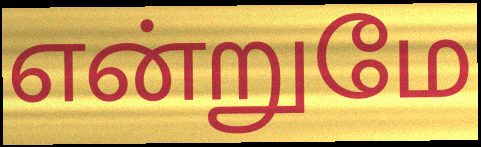
என்றுமே